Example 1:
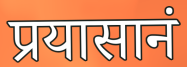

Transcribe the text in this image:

प्रयासानं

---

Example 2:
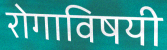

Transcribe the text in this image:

रोगाविषयी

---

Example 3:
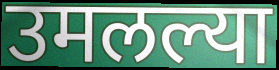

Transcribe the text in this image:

उमलल्या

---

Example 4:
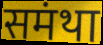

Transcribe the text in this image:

समंथा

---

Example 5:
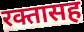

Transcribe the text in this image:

रक्तासह